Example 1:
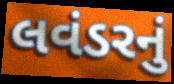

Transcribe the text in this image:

લવંડરનું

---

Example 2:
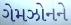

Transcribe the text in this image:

ગેમઝોનને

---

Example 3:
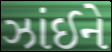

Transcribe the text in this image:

ઝાંઈને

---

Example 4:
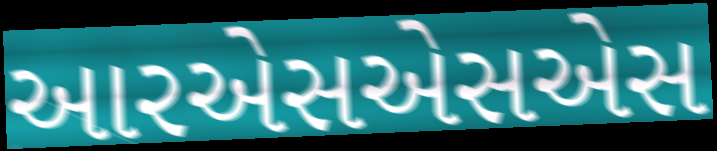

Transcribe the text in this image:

આરએસએસએસ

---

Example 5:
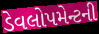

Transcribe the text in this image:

ડેવલોપમેન્ટની